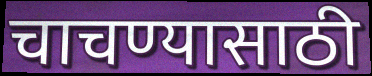
चाचण्यासाठी